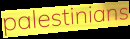
palestinians